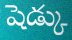
షెడ్కు